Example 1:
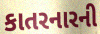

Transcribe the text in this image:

કાતરનારની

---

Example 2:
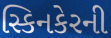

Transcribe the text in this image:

સ્કિનકેરની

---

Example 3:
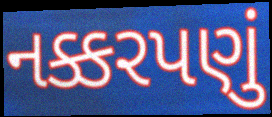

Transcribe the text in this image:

નક્કરપણું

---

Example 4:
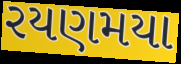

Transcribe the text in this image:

રયણમયા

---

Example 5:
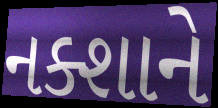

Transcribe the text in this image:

નક્શાને